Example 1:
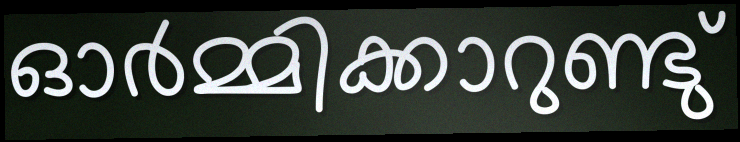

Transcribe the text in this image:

ഓർമ്മിക്കാറുണ്ടു്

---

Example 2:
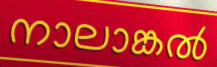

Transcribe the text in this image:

നാലാങ്കൽ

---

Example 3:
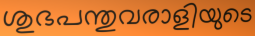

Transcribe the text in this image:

ശുഭപന്തുവരാളിയുടെ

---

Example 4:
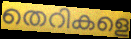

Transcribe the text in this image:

തെറികളെ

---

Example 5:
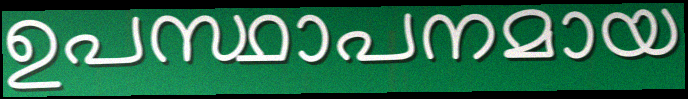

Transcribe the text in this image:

ഉപസ്ഥാപനമായ